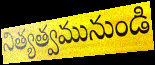
నిత్యత్వమునుండి